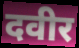
दवीर